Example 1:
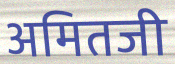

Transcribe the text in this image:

अमितजी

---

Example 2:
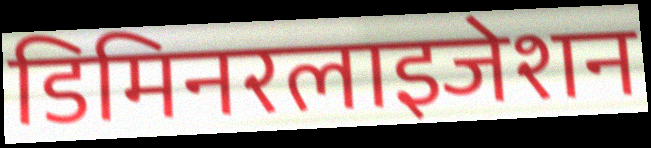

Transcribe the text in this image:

डिमिनरलाइजेशन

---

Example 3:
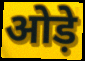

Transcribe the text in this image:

ओड़े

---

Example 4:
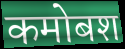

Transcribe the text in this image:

कमोबश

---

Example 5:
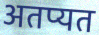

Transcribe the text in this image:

अतप्यत